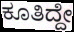
ಕೂತಿದ್ದೇ